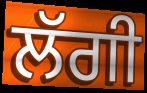
ਲੱਗੀ